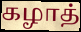
கழாத்